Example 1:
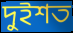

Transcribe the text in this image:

দুইশত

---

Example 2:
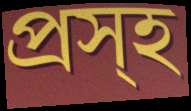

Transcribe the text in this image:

প্রস্হ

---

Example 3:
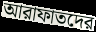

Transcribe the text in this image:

আরাফাতদের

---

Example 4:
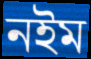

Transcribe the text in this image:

নইম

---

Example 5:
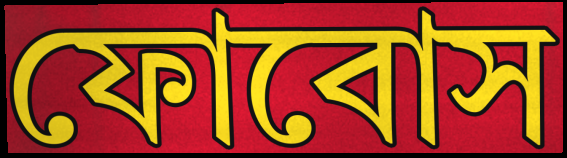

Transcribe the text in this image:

ফোবোস